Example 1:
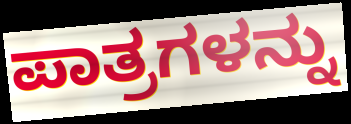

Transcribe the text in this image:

ಪಾತ್ರಗಳನ್ನು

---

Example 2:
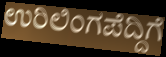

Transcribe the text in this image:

ಉರಿಲಿಂಗಪೆದ್ದಿಗೆ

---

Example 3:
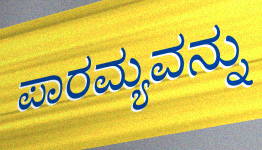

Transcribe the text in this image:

ಪಾರಮ್ಯವನ್ನು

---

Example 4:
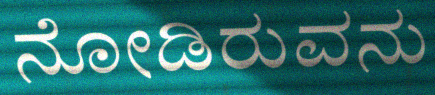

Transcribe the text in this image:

ನೋಡಿರುವನು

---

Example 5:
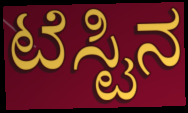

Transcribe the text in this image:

ಟೆಸ್ಟಿನ